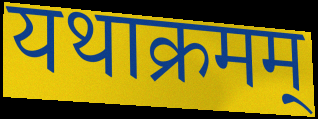
यथाक्रमम्